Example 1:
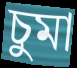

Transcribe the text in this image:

চুমা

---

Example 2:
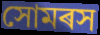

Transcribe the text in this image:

সোমৰস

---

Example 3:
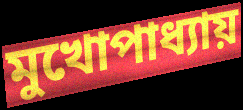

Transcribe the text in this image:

মুখোপাধ্যায়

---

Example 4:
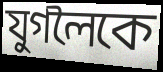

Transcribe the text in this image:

যুগলৈকে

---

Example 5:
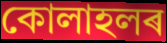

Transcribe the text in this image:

কোলাহলৰ